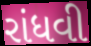
રાંધવી